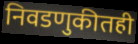
निवडणुकीतही